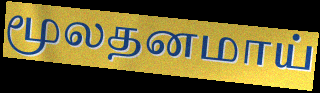
மூலதனமாய்